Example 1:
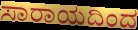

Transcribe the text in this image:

ಸಾರಾಯದಿಂದ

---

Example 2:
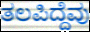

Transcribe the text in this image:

ತಲಪಿದ್ದೆವು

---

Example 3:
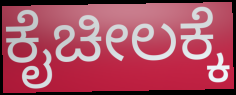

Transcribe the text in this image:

ಕೈಚೀಲಕ್ಕೆ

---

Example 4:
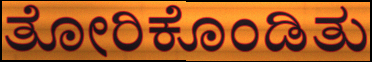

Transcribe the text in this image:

ತೋರಿಕೊಂಡಿತು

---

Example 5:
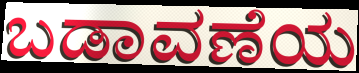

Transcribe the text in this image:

ಬಡಾವಣೆಯ